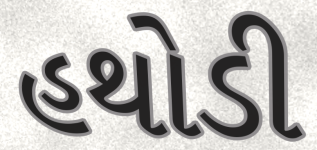
હથોડી